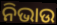
ନିଭାଉ